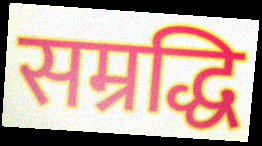
सम्रद्धि